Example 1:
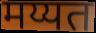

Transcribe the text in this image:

मय्यत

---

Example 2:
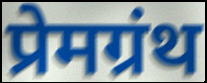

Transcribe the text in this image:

प्रेमग्रंथ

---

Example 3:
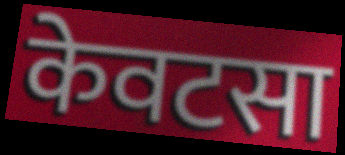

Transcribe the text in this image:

केवटसा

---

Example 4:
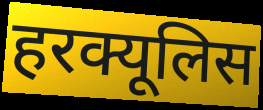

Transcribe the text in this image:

हरक्यूलिस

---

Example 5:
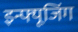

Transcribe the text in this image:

इन्फ्यूजिंग